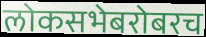
लोकसभेबरोबरच